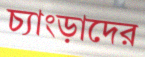
চ্যাংড়াদের